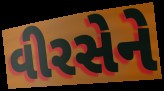
વીરસેને